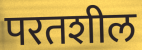
परतशील